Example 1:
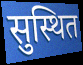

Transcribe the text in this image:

सुस्थित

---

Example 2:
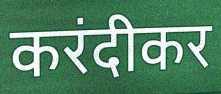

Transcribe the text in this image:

करंदीकर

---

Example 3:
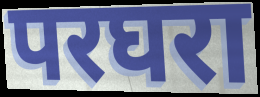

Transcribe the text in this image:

परघरा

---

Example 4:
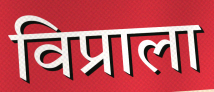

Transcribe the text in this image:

विप्राला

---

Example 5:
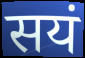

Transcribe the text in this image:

सयं